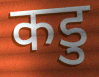
कडु